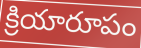
క్రియారూపం